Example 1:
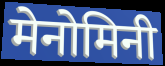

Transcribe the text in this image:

मेनोमिनी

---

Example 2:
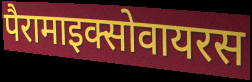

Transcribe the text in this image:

पैरामाइक्सोवायरस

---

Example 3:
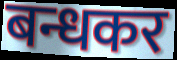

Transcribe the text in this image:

बन्धकर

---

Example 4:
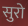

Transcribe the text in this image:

सुरो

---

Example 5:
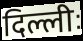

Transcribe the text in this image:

दिल्लीः